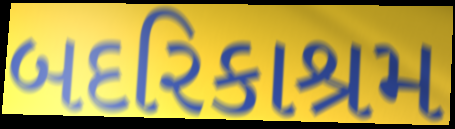
બદરિકાશ્રમ